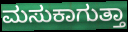
ಮಸುಕಾಗುತ್ತಾ